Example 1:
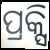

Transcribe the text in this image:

ପ୍ରକ୍ସି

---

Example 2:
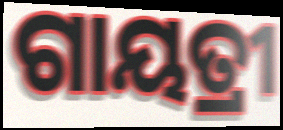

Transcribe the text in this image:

ଗାୟତ୍ରୀ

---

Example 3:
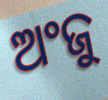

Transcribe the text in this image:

ଅଂଜୁ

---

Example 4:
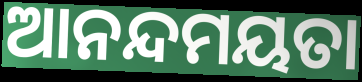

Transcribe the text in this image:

ଆନନ୍ଦମୟତା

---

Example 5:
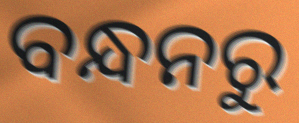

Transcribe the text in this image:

ବନ୍ଧନରୁ